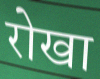
रोखा